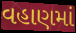
વહાણમાં